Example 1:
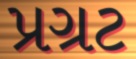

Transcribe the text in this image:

પ્રગ્રટ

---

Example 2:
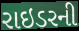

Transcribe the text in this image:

રાઇડરની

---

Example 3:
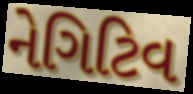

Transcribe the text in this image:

નેગિટિવ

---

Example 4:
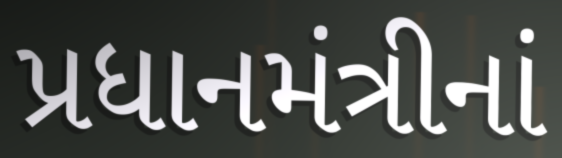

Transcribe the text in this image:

પ્રધાનમંત્રીનાં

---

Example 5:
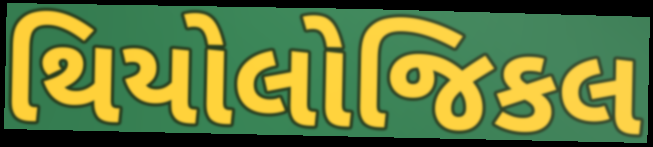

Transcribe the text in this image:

થિયોલોજિકલ